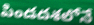
పిండదశలోనే